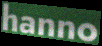
hanno